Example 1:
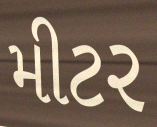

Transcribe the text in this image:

મીટર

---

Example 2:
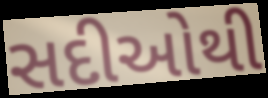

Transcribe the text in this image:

સદીઓથી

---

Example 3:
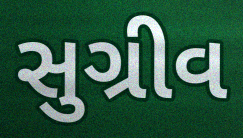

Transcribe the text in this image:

સુગ્રીવ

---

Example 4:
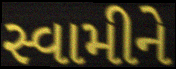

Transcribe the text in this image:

સ્વામીને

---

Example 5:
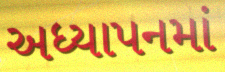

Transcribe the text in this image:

અધ્યાપનમાં